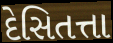
દેસિતત્તા